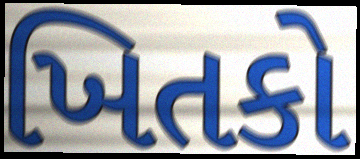
ખિતકો